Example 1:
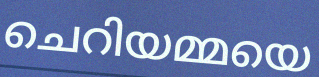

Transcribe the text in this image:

ചെറിയമ്മയെ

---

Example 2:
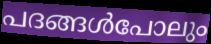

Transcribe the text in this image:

പദങ്ങൾപോലും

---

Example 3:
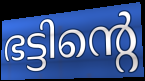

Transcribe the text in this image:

ഭട്ടിന്റെ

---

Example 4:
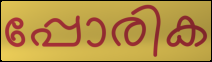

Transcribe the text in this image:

പ്പോരിക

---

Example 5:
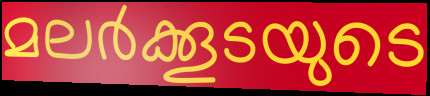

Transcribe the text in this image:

മലർക്കൂടയുടെ